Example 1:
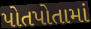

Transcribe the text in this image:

પોતપોતામાં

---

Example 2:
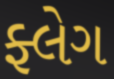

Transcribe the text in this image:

ફ્લેગ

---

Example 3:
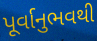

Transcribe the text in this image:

પૂર્વાનુભવથી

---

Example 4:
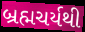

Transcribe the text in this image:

બ્રહ્મચર્યથી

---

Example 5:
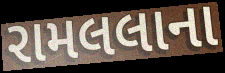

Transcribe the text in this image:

રામલલાના